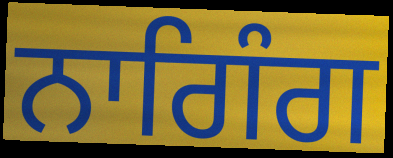
ਨਾਗਿੰਗ